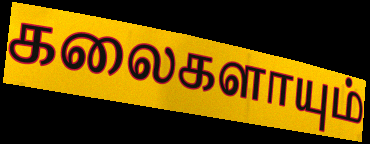
கலைகளாயும்